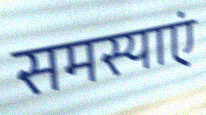
समस्याएं